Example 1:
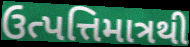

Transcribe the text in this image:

ઉત્પત્તિમાત્રથી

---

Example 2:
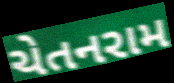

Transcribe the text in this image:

ચેતનરામ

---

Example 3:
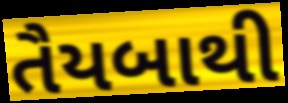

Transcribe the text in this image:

તૈયબાથી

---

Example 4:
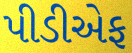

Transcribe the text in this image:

પીડીએફ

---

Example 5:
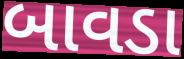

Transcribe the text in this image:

બાવડા